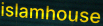
islamhouse